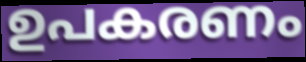
ഉപകരണം